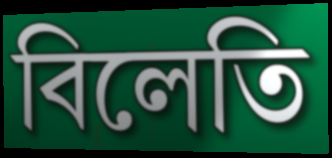
বিলেতি